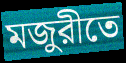
মজুরীতে